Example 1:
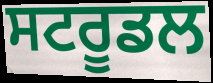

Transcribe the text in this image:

ਸਟਰੂਡਲ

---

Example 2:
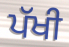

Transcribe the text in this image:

ਪੱਖੀ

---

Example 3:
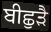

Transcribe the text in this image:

ਬੀਛੁੜੈ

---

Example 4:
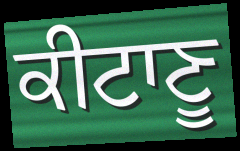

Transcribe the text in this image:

ਕੀਟਾਣੂ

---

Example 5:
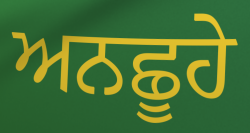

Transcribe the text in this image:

ਅਨਛੂਹੇ